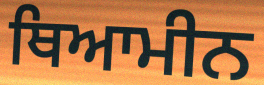
ਥਿਆਮੀਨ